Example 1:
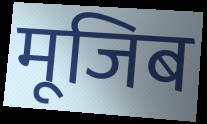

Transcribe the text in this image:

मूजिब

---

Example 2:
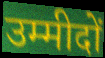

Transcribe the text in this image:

उम्मीदों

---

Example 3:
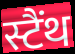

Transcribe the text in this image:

स्टैंथ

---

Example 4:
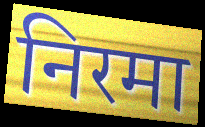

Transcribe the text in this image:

निरमा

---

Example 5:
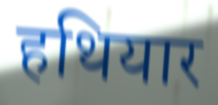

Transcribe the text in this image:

हथियार